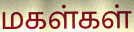
மகள்கள்